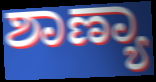
ಶಾಣ್ಯಾ